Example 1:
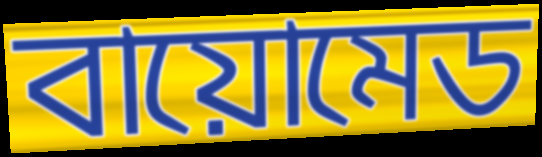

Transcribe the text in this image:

বায়োমেড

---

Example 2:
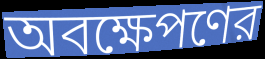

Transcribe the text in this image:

অবক্ষেপণের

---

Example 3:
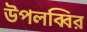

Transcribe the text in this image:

উপলব্বির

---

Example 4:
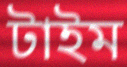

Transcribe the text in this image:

টাইম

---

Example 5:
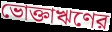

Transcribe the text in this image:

ভোক্তাঋণের